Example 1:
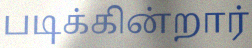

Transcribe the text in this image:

படிக்கின்றார்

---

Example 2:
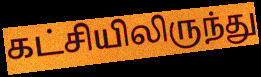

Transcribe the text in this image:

கட்சியிலிருந்து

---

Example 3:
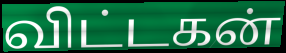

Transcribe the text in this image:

விட்டகன்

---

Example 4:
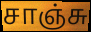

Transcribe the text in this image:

சாஞ்சு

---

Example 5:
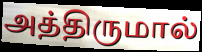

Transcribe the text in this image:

அத்திருமால்